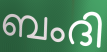
ബംദി